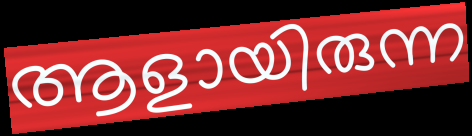
ആളായിരുന്ന